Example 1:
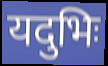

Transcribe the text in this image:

यदुभिः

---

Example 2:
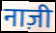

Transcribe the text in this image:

नाज़ी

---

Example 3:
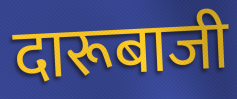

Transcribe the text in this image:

दारूबाजी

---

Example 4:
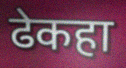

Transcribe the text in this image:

ढेकहा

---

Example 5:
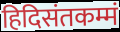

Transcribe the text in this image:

हिदिसंतकम्मं